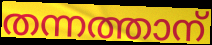
തന്നത്താന്